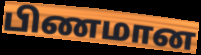
பிணமான